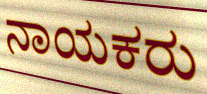
ನಾಯಕರು